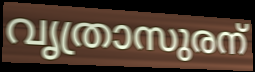
വൃത്രാസുരന്